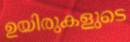
ഉയിരുകളുടെ